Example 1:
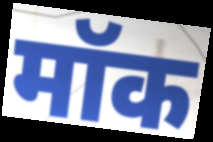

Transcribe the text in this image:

मॉक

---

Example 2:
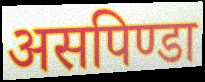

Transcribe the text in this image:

असपिण्डा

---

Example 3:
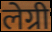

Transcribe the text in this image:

लेग्री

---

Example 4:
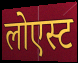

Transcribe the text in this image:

लोएस्ट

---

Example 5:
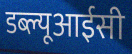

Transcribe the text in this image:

डब्ल्यूआईसी